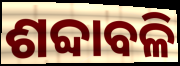
ଶବ୍ଦାବଳି